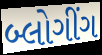
બ્લોગીંગ